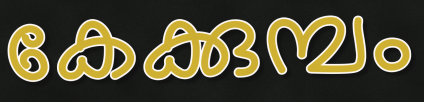
കേക്കുമ്പം